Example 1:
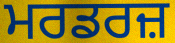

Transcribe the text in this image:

ਮਰਡਰਜ਼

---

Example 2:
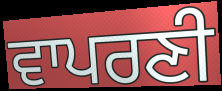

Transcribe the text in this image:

ਵਾਪਰਣੀ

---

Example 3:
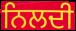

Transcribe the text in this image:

ਨਿਲਦੀ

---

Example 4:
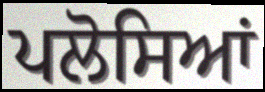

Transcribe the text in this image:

ਪਲੋਸਿਆਂ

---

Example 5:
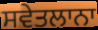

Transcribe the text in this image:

ਸਵੇਤਲਾਨਾ